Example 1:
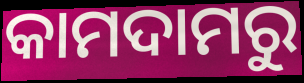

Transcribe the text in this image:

କାମଦାମରୁ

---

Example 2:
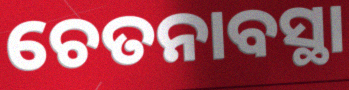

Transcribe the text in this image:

ଚେତନାବସ୍ଥା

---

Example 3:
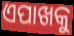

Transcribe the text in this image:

ଏପାଖକୁ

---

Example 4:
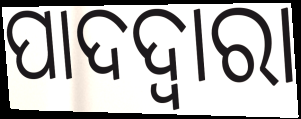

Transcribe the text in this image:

ପାଦଦ୍ଵାରା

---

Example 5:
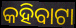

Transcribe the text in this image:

କହିବାଟା